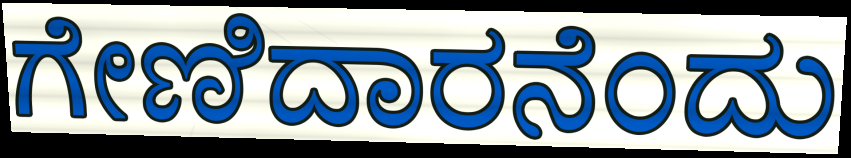
ಗೇಣಿದಾರನೆಂದು